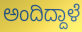
ಅಂದಿದ್ದಾಳೆ